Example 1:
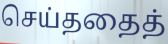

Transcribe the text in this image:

செய்ததைத்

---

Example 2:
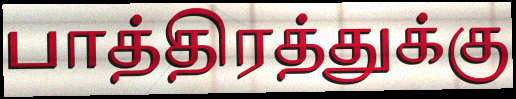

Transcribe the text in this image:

பாத்திரத்துக்கு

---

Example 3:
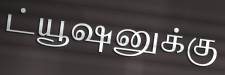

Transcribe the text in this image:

ட்யூஷனுக்கு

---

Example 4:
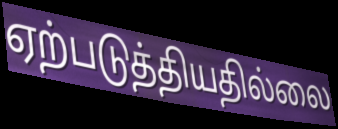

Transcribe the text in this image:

ஏற்படுத்தியதில்லை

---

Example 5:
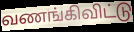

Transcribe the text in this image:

வணங்கிவிட்டு